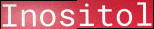
Inositol